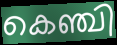
കെഞ്ചി